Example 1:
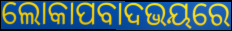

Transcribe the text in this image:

ଲୋକାପବାଦଭୟରେ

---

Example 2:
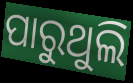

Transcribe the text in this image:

ପାରୁଥୁଲି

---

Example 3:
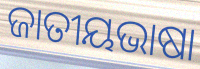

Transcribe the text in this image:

ଜାତୀୟଭାଷା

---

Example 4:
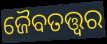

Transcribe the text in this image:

ଜୈବତତ୍ତ୍ୱର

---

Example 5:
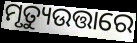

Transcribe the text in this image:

ମୃତ୍ୟୁଉତ୍ତାରେ